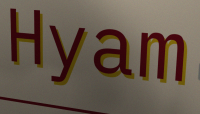
Hyam